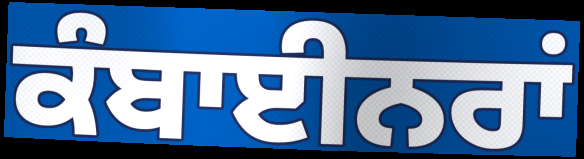
ਕੰਬਾਈਨਰਾਂ